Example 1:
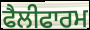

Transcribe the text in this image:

ਫੈਲੀਫਾਰਮ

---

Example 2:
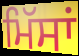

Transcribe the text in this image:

ਮਿੱਸਾਂ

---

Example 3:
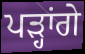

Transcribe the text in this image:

ਪੜ੍ਹਾਂਗੇ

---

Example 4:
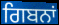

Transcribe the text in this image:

ਗਿਬਨਾਂ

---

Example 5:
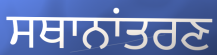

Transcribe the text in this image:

ਸਥਾਨਾਂਤਰਣ